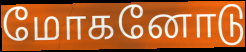
மோகனோடு